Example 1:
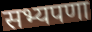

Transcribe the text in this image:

सभ्यपणा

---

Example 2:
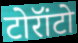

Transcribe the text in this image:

टोरॉंटो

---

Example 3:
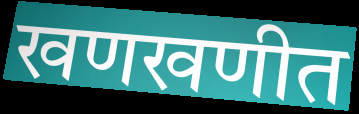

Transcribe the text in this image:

खणखणीत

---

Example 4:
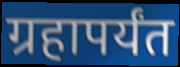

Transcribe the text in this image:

ग्रहापर्यंत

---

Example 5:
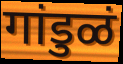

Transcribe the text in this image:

गांडुळं